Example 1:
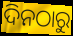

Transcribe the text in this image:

ଦିନଠାରୁ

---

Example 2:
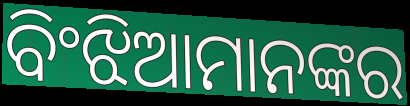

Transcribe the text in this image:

ବିଂଝିଆମାନଙ୍କର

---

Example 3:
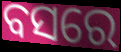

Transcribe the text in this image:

ବସରେ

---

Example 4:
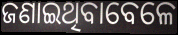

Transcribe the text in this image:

ଜଣାଇଥିବାବେଳେ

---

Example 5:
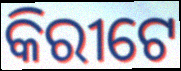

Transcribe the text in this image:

କିରୀଟେ